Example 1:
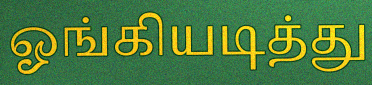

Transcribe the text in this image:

ஓங்கியடித்து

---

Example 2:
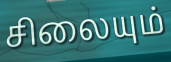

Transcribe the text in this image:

சிலையும்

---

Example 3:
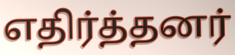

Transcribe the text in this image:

எதிர்த்தனர்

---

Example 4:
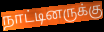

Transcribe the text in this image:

நாட்டினருக்கு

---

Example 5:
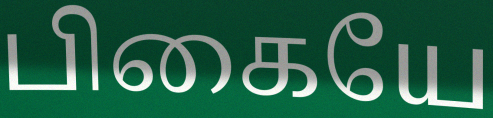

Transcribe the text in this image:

பிகையே